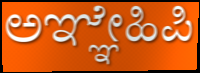
ಅಞ್ಞೇಹಿಪಿ